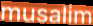
musalim